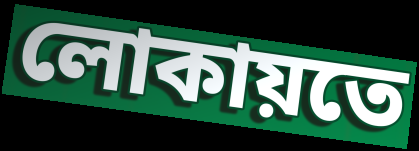
লোকায়তে